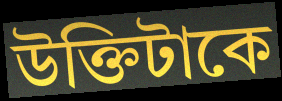
উক্তিটাকে